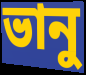
ভানু